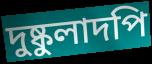
দুষ্কুলাদপি